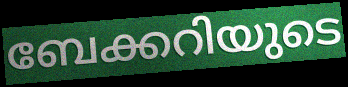
ബേക്കറിയുടെ